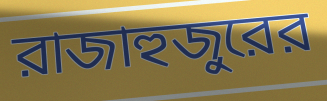
রাজাহুজুরের